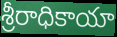
శ్రీరాధికాయా